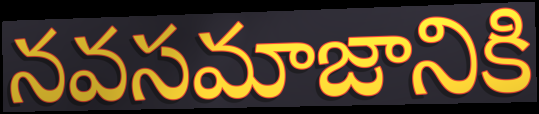
నవసమాజానికి